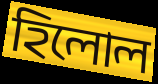
হিলোল